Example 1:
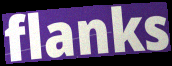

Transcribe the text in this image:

flanks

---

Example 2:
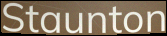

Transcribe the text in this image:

Staunton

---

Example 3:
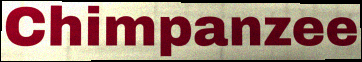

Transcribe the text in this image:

Chimpanzee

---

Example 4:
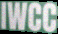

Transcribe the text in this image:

IWCC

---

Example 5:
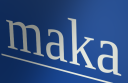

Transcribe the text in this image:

maka